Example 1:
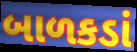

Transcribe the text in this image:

બાળકડાં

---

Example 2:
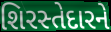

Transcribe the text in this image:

શિરસ્તેદારને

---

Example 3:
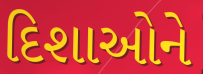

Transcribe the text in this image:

દિશાઓને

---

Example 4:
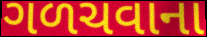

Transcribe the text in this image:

ગળચવાના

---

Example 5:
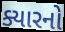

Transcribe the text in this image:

ક્યારનો